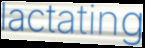
lactating